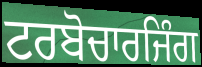
ਟਰਬੋਚਾਰਜਿੰਗ